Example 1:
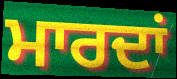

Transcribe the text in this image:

ਮਾਰਦਾਂ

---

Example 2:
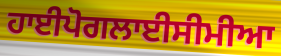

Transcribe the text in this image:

ਹਾਈਪੋਗਲਾਈਸੀਮੀਆ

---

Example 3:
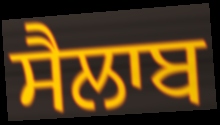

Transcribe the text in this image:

ਸੈਲਾਬ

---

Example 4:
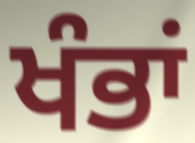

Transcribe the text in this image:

ਖੰਭਾਂ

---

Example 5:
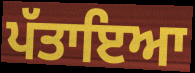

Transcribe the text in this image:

ਪੱਤਾਇਆ